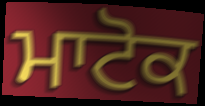
ਮਾਟੋਕ